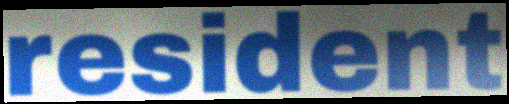
resident